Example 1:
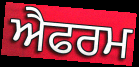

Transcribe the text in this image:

ਐਫਰਮ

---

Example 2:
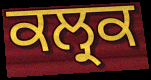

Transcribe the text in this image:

ਕਲ੍ਰਕ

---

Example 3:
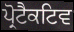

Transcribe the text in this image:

ਪ੍ਰੋਟੈਕਟਿਵ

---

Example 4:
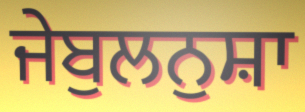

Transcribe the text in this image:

ਜੇਬੁਲਨੁਸ਼ਾ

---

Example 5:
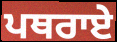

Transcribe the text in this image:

ਪਥਰਾਏ